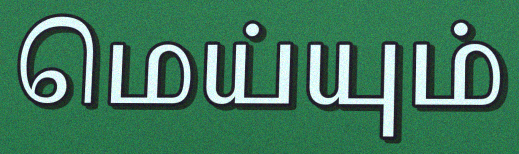
மெய்யும்